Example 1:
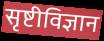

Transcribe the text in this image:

सृष्टीविज्ञान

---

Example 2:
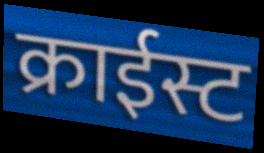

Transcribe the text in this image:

क्राईस्ट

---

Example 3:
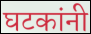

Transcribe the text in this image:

घटकांनी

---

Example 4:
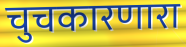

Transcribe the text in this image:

चुचकारणारा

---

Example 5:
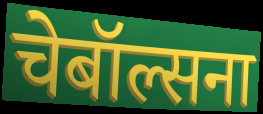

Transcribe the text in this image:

चेबॉल्सना